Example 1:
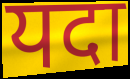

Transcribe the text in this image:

यदा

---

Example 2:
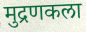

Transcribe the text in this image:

मुद्रणकला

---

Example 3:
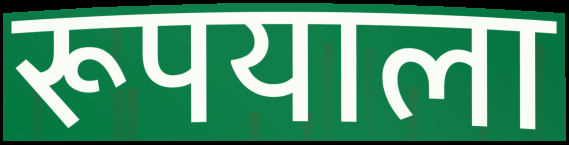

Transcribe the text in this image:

रूपयाला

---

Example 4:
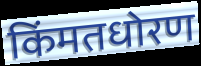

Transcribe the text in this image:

किंमतधोरण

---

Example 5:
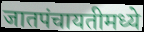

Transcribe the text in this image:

जातपंचायतीमध्ये